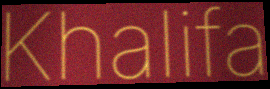
Khalifa